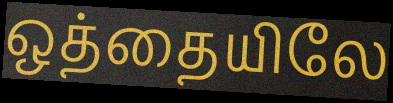
ஒத்தையிலே